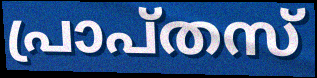
പ്രാപ്തസ്